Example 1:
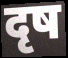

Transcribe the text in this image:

दृष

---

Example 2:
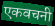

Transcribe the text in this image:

एकवचनी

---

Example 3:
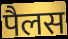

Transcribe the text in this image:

पैलस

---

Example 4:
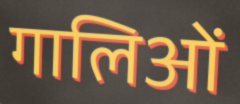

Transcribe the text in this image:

गालिओं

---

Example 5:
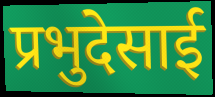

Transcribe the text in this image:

प्रभुदेसाई